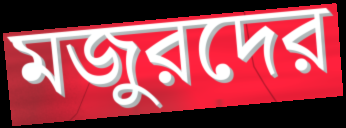
মজুরদের